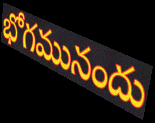
భోగమునందు